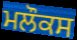
ਮਲੌਕਸ